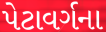
પેટાવર્ગના